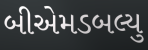
બીએમડબલ્યુ